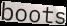
boots